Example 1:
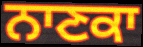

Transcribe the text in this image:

ਨਾਣਕਾ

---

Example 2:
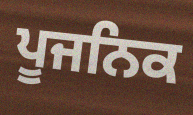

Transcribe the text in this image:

ਪੂਜਨਿਕ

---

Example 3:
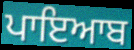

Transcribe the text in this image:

ਪਾਇਆਬ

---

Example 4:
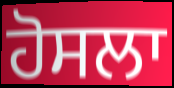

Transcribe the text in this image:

ਹੋਸਲਾ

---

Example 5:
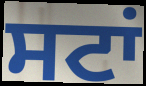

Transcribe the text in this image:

ਸਟਾਂ